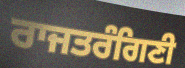
ਰਾਜਤਰੰਗਿਣੀ